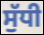
ਸੁੱਧੀ